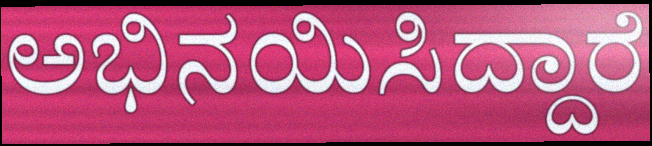
ಅಭಿನಯಿಸಿದ್ದಾರೆ